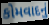
કોમવાદનું